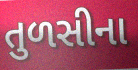
તુળસીના